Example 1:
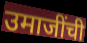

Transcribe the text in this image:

उमाजींची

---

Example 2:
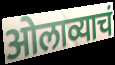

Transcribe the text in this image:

ओलाव्याचं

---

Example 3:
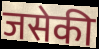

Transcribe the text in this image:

जसेकी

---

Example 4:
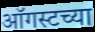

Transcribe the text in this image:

ऑगस्टच्या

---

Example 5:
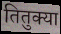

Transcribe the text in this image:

तितुक्या